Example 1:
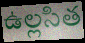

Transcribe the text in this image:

ఉల్లసిత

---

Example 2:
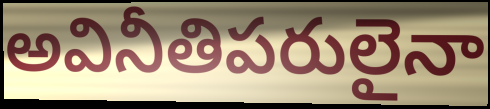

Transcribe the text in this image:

అవినీతిపరులైనా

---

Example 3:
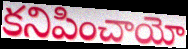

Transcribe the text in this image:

కనిపించాయో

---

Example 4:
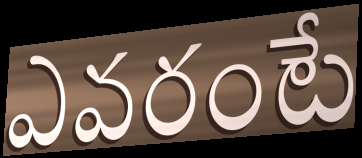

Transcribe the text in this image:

ఎవరంటే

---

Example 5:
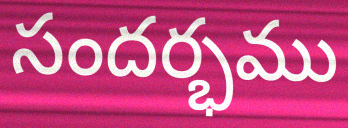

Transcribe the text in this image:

సందర్భము